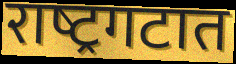
राष्ट्रगटात